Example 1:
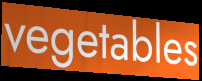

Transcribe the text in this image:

vegetables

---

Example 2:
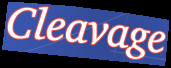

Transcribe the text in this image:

Cleavage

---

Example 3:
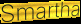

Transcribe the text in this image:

Smartha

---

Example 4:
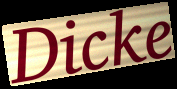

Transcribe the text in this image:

Dicke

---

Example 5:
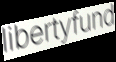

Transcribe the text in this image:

libertyfund